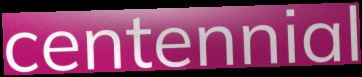
centennial